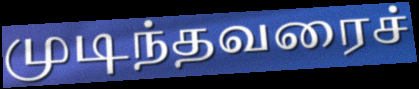
முடிந்தவரைச்